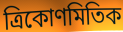
ত্ৰিকোণমিতিক